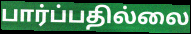
பார்ப்பதில்லை